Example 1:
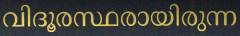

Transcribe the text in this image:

വിദൂരസ്ഥരായിരുന്ന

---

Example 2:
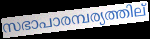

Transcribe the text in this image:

സഭാപാരമ്പര്യത്തില്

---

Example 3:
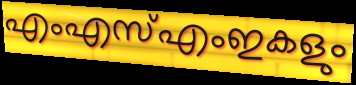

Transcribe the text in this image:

എംഎസ്എംഇകളും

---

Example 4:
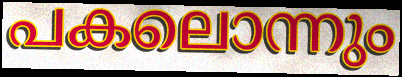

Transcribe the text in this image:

പകലൊന്നും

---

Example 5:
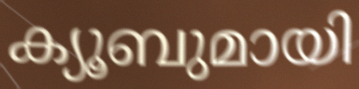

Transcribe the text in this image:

ക്യൂബുമായി